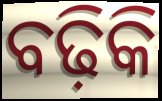
ବଢ଼ିକି